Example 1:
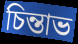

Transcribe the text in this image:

চিন্তাভ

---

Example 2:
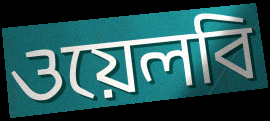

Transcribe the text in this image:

ওয়েলবি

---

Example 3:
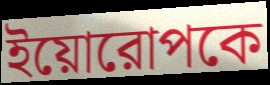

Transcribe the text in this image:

ইয়োরোপকে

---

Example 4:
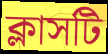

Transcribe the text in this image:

ক্লাসটি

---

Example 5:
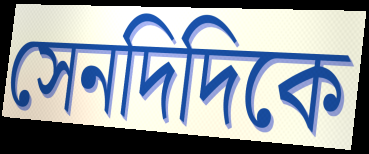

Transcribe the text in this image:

সেনদিদিকে